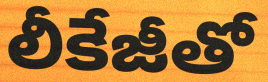
లీకేజీతో